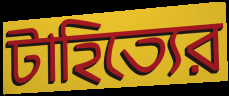
টাহিত্যের